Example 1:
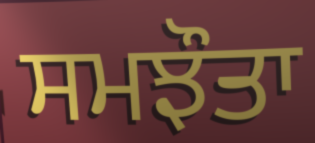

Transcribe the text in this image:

ਸਮਝੌਤਾ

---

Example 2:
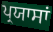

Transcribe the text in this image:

ਪ੍ਰਯਾਸਾਂ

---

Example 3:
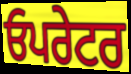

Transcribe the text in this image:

ਓਪਰੇਟਰ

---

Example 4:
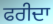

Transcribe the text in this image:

ਫਰੀਦਾ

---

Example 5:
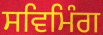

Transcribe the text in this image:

ਸਵਿਮਿੰਗ